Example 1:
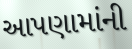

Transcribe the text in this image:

આપણામાંની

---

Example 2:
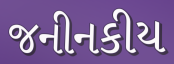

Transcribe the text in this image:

જનીનકીય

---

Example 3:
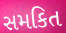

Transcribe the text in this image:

સમકિત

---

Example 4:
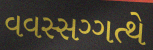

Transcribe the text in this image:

વવસ્સગ્ગત્થે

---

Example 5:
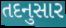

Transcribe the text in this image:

તદનુસાર